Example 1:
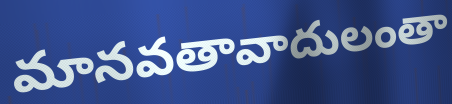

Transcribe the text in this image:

మానవతావాదులంతా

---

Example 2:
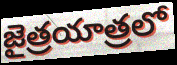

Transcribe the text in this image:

జైత్రయాత్రలో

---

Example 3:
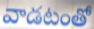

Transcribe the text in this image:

వాడటంతో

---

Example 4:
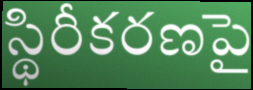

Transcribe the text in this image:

స్థిరీకరణపై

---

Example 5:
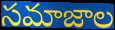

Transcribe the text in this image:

సమాజాల